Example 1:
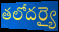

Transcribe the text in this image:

తలోదర్యై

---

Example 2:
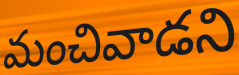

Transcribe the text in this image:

మంచివాడని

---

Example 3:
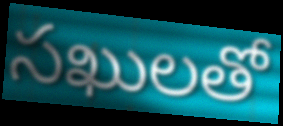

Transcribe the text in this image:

సఖులతో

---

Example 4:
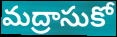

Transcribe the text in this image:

మద్రాసుకో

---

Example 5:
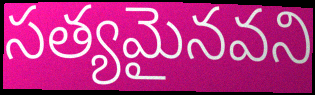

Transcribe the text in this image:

సత్యమైనవని